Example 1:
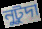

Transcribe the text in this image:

নুটুদা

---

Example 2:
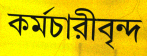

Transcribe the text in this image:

কর্মচারীবৃন্দ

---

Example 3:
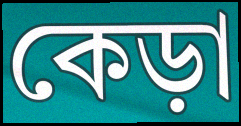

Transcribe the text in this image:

কেড়া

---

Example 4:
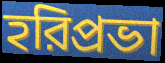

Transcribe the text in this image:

হরিপ্রভা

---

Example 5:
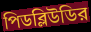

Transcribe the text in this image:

পিডব্লিউডির